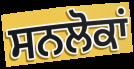
ਸਨਲੋਕਾਂ